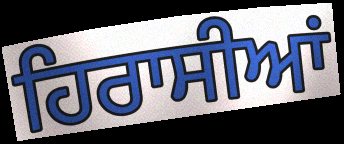
ਹਿਰਾਸੀਆਂ